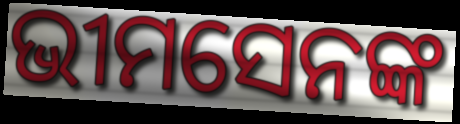
ଭୀମସେନଙ୍କ